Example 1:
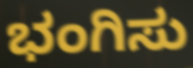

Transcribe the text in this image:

ಭಂಗಿಸು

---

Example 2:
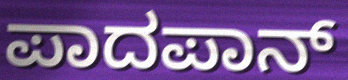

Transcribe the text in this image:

ಪಾದಪಾನ್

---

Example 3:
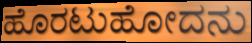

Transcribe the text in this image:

ಹೊರಟುಹೋದನು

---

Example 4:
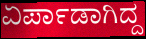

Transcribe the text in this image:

ಏರ್ಪಾಡಾಗಿದ್ದ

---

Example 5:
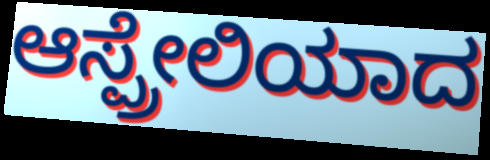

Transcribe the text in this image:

ಆಸ್ಪ್ರೇಲಿಯಾದ